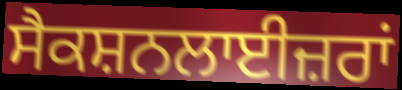
ਸੈਕਸ਼ਨਲਾਈਜ਼ਰਾਂ